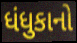
ધંધુકાનો